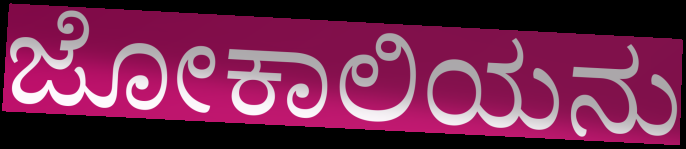
ಜೋಕಾಲಿಯನು